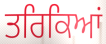
ਤਰਿਕਿਆਂ